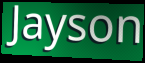
Jayson